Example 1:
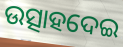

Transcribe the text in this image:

ଉତ୍ସାହଦେଇ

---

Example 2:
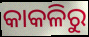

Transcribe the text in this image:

କାକଳିରୁ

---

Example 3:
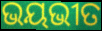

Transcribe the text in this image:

ଭୟଭୀତ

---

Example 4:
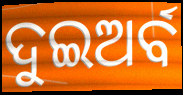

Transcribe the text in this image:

ଦୁଇଅର୍ବ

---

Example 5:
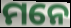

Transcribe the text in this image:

ମନେ